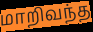
மாறிவந்த